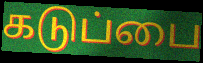
கடுப்பை